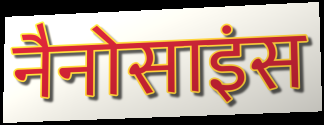
नैनोसाइंस